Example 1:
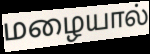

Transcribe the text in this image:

மழையால்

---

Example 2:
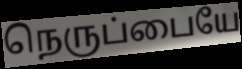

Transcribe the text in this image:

நெருப்பையே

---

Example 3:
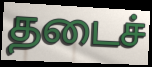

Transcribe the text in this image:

தடைச்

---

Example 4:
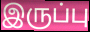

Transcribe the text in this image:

இருப்பு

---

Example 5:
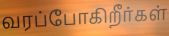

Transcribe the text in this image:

வரப்போகிறீர்கள்